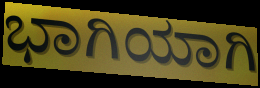
ಭಾಗಿಯಾಗಿ